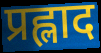
प्रह्लाद